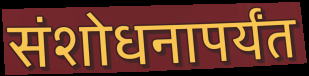
संशोधनापर्यंत